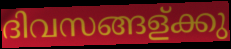
ദിവസങ്ങള്ക്കു